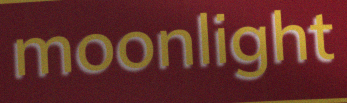
moonlight